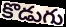
కొడుగు